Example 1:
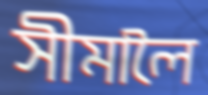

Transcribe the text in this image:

সীমালৈ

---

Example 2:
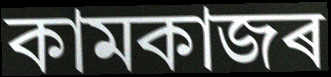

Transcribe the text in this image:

কামকাজৰ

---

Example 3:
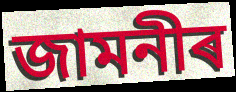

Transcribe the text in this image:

জামনীৰ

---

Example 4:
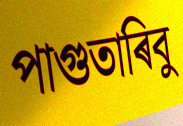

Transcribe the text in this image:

পাগুতাৰিবু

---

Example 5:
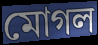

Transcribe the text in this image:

মোগল